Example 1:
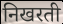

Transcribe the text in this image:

निखरती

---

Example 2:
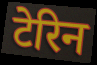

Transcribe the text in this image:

टेरिन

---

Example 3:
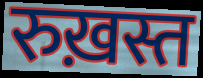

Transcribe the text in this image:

रुख़स्त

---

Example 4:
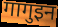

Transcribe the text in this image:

गागुइन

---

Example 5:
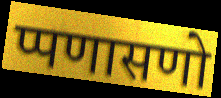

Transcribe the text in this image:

प्पणासणो